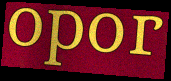
opor